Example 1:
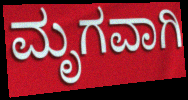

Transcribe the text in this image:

ಮೃಗವಾಗಿ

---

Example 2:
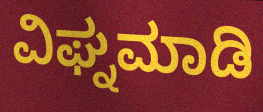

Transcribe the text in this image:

ವಿಘ್ನಮಾಡಿ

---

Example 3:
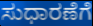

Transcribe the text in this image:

ಸುಧಾರಣೆಗೆ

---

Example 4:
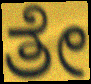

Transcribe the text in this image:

ತೇ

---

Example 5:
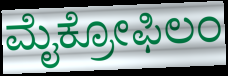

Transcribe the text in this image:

ಮೈಕ್ರೋಫಿಲಂ